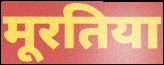
मूरतिया